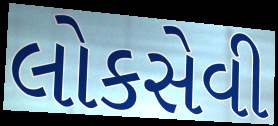
લોકસેવી